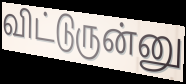
விட்டுருன்னு